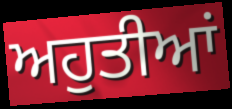
ਅਹੁਤੀਆਂ